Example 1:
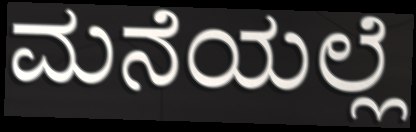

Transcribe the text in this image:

ಮನೆಯಲ್ಲೆ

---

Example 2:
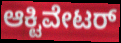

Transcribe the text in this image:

ಆಕ್ಟಿವೇಟರ್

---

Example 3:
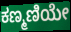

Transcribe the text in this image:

ಕಣ್ಮಣಿಯೇ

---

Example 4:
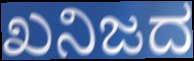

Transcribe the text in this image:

ಖನಿಜದ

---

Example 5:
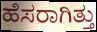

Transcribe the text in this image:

ಹೆಸರಾಗಿತ್ತು